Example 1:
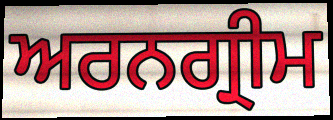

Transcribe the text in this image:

ਅਰਨਗ੍ਰੀਮ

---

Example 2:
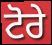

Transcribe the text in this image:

ਟੋਰੇ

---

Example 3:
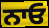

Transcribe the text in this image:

ਨਾਓ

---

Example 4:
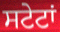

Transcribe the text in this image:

ਸਟੇਟਾਂ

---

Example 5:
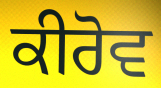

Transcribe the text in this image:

ਕੀਰੋਵ